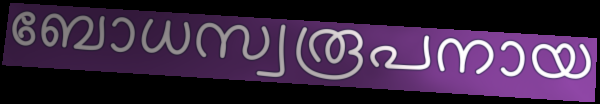
ബോധസ്വരൂപനായ